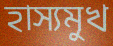
হাস্যমুখ